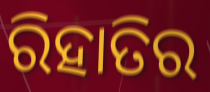
ରିହାତିର